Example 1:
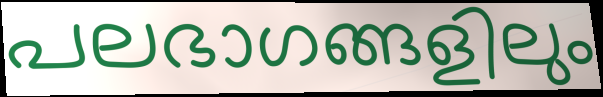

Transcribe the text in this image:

പലഭാഗങ്ങളിലും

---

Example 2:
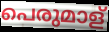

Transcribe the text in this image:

പെരുമാള്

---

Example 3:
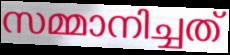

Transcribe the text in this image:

സമ്മാനിച്ചത്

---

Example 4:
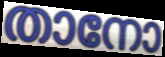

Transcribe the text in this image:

താനോ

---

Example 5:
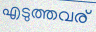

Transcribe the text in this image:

എടുത്തവര്